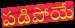
పడిపోయే